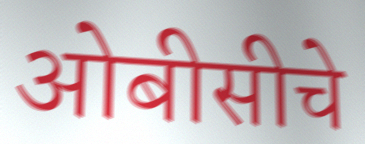
ओबीसीचे